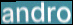
andro